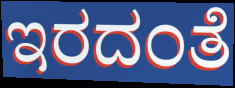
ಇರದಂತೆ